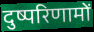
दुष्परिणामों